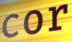
cor